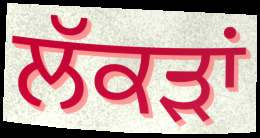
ਲੱਕੜਾਂ